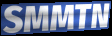
SMMTN